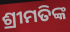
ଶ୍ରୀମତିଙ୍କ